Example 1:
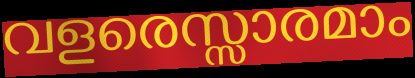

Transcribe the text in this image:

വളരെസ്സാരമാം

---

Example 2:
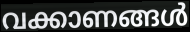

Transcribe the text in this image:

വക്കാണങ്ങൾ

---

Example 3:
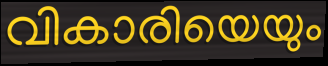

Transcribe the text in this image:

വികാരിയെയും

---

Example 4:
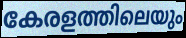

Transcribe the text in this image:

കേരളത്തിലെയും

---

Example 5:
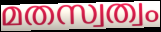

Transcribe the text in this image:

മതസ്വത്വം